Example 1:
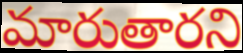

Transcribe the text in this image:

మారుతారని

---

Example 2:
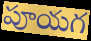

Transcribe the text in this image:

పూయగ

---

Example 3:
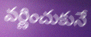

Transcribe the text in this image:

వర్ణించుకునే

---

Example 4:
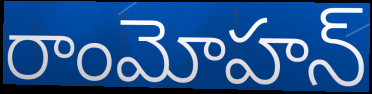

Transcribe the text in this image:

రాంమోహన్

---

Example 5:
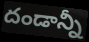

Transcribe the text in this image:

దండాన్నీ